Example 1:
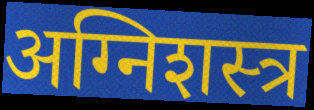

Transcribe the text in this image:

अग्निशस्त्र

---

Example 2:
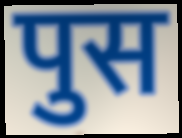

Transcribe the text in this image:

पुस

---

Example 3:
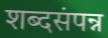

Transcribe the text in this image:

शब्दसंपन्न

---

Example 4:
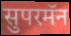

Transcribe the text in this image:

सुपरमॅन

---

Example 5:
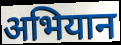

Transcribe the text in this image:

अभियान